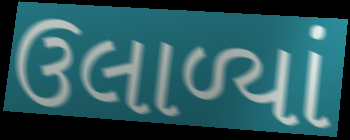
ઉલાળ્યાં